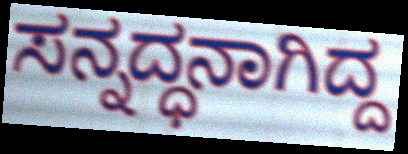
ಸನ್ನದ್ಧನಾಗಿದ್ದ